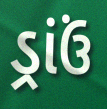
ડ્રાંઉં